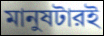
মানুষটারই